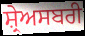
ਸ਼੍ਰੇਅਸਬਰੀ